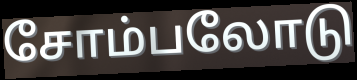
சோம்பலோடு